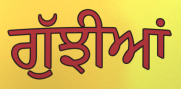
ਗੁੱਝੀਆਂ